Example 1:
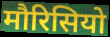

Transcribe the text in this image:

मौरिसियो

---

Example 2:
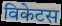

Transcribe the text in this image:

विकेटस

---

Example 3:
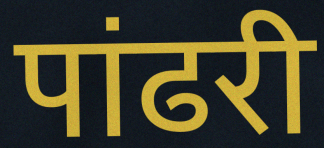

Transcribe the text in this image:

पांढरी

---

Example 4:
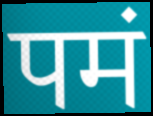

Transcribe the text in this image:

पमं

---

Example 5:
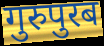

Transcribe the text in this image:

गुरुपुरब